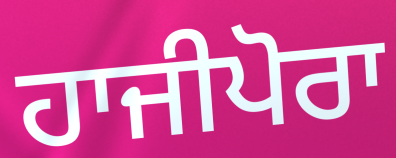
ਹਾਜੀਪੋਰਾ